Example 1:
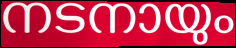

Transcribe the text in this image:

നടനായും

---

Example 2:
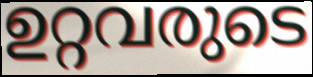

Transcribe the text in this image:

ഉറ്റവരുടെ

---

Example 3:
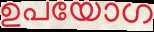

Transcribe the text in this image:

ഉപയോഗ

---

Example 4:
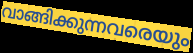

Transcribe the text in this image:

വാങ്ങിക്കുന്നവരെയും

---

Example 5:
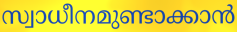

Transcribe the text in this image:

സ്വാധീനമുണ്ടാക്കാൻ